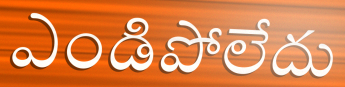
ఎండిపోలేదు